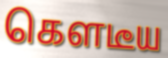
கௌடீய